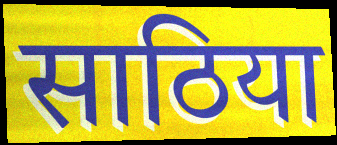
साठिया